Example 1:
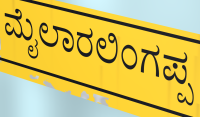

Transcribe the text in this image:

ಮೈಲಾರಲಿಂಗಪ್ಪ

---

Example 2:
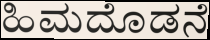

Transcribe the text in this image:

ಹಿಮದೊಡನೆ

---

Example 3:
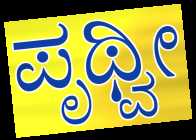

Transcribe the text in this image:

ಪೃಥ್ವೀ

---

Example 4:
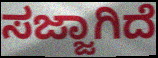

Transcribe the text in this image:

ಸಜ್ಜಾಗಿದೆ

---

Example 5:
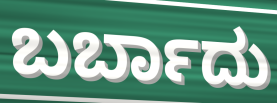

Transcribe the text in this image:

ಬರ್ಬಾದು